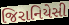
જિરાનિયેસી